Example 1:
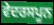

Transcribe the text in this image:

ਵੇਦਰਸਪੂਨ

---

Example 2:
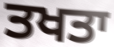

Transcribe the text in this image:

ਤਖਤਾ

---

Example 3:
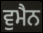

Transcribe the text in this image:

ਵੁਮੈਨ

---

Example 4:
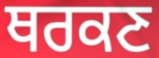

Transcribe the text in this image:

ਥਰਕਣ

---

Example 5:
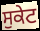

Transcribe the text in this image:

ਸੁਕੇਟ